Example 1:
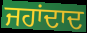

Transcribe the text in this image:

ਜਹਾਂਦਾਦ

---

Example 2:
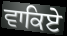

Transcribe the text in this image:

ਵਾਕਿਏ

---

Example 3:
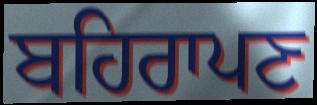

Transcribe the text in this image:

ਬਹਿਰਾਪਣ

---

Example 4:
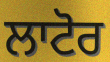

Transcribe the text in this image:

ਲਾਟੋਰ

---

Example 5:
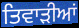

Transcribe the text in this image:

ਤਿਵਾੜੀਆਂ